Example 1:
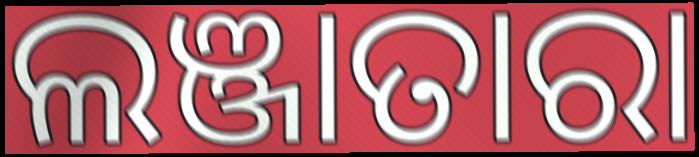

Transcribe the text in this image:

ଲଞ୍ଜାତାରା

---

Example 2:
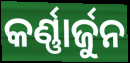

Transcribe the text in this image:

କର୍ଣ୍ଣାର୍ଜୁନ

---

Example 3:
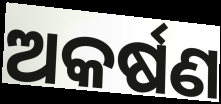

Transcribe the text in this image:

ଅକର୍ଷଣ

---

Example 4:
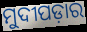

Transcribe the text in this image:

ମୁଦୀପଡ଼ାର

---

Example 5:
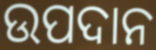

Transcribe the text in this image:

ଉପଦାନ